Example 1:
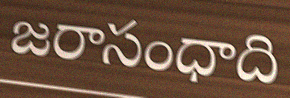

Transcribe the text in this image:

జరాసంధాది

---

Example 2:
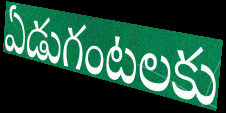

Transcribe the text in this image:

ఏడుగంటలకు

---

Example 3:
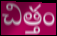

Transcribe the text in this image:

చిత్తం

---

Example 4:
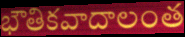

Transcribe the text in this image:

భౌతికవాదాలంత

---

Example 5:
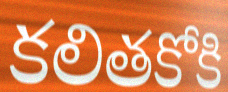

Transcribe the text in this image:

కలితకోకి